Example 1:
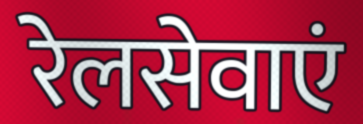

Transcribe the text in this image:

रेलसेवाएं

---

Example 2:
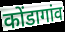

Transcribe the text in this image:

कोंडागांव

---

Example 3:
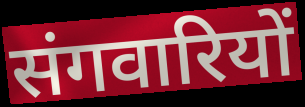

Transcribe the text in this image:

संगवारियों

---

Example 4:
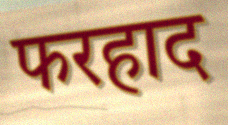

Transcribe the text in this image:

फरहाद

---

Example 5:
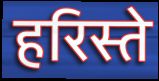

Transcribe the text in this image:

हरिस्ते